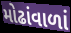
મોઢાંવાળાં